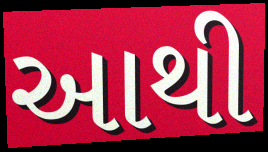
આથી